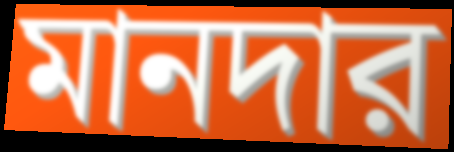
মানদার